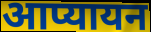
आप्यायन